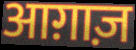
आग़ाज़